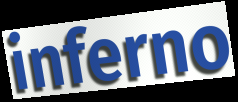
inferno